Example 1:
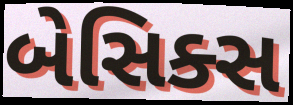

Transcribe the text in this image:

બેસિક્સ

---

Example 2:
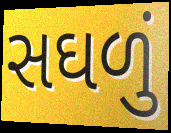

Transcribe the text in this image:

સઘળું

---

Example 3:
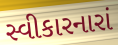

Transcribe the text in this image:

સ્વીકારનારાં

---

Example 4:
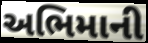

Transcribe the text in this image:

અભિમાની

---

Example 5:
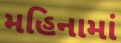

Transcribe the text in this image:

મહિનામાં